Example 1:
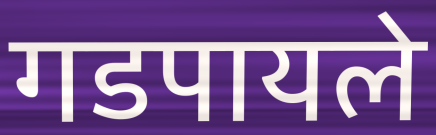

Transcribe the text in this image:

गडपायले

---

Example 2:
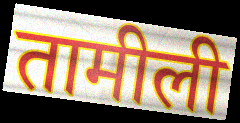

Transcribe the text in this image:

तामीली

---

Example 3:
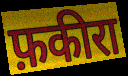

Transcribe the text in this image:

फ़कीरा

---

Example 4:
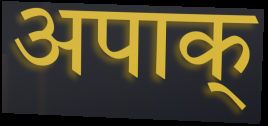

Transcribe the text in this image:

अपाक्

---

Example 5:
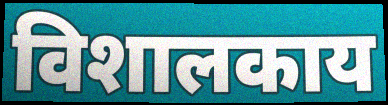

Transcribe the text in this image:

विशालकाय